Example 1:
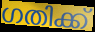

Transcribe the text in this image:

ഗതിക്ക്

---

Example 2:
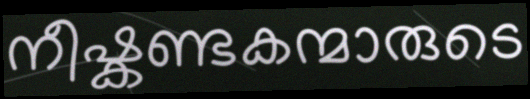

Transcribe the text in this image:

നീഷ്കണ്ടകന്മാരുടെ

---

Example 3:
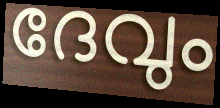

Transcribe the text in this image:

ദേവും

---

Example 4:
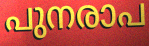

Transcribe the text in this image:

പുനരാപ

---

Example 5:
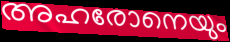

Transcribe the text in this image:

അഹരോനെയും